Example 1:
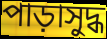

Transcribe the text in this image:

পাড়াসুদ্ধ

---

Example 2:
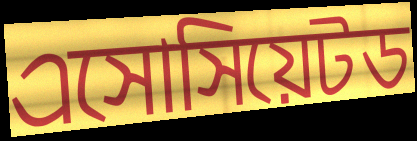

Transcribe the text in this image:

এসোসিয়েটড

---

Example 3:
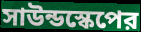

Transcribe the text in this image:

সাউন্ডস্কেপের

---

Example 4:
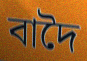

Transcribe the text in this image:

বাদৈ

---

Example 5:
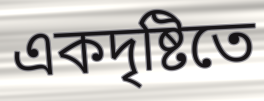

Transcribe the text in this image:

একদৃষ্টিতে